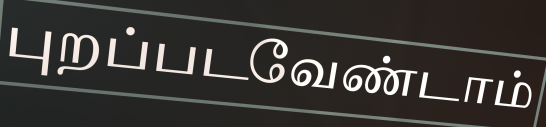
புறப்படவேண்டாம்